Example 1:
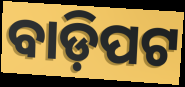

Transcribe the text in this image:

ବାଡ଼ିପଟ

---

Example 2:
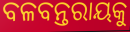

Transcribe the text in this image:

ବଳବନ୍ତରାୟକୁ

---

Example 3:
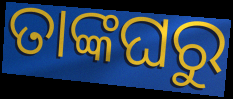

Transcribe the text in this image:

ତାଙ୍କଘରୁ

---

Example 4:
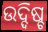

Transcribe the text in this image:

ଉଦ୍ଦିଷ୍ଚ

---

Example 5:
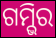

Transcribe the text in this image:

ଗମ୍ଭିର